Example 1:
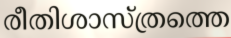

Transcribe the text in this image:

രീതിശാസ്ത്രത്തെ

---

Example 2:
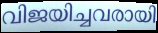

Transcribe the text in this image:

വിജയിച്ചവരായി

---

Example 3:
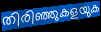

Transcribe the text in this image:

തിരിഞ്ഞുകളയുക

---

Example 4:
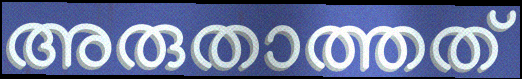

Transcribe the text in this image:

അരുതാത്തത്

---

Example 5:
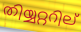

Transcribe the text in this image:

തിയ്യറ്ററില്